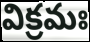
విక్రమః